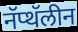
नॅप्थॅलीन